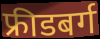
फ्रीडबर्ग